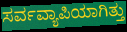
ಸರ್ವವ್ಯಾಪಿಯಾಗಿತ್ತು